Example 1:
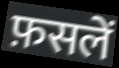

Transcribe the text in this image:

फ़सलें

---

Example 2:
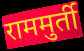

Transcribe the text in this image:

राममुर्ती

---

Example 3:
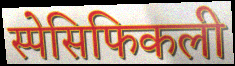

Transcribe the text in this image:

स्पेसिफिकली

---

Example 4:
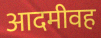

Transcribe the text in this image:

आदमीवह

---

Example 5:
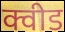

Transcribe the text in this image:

क्वीड